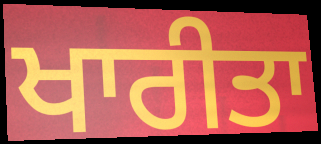
ਖਾਰੀਤਾ